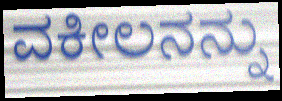
ವಕೀಲನನ್ನು